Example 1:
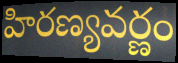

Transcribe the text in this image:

హిరణ్యవర్ణం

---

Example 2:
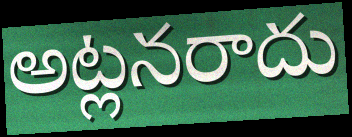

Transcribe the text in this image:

అట్లనరాదు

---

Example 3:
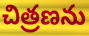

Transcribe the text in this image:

చిత్రణను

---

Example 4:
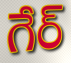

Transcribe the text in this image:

గేర్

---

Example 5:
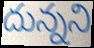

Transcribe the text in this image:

దున్నని